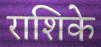
राशिके